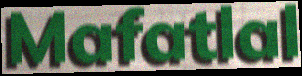
Mafatlal